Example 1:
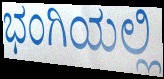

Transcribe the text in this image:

ಭಂಗಿಯಲ್ಲಿ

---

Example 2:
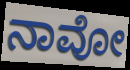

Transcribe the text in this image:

ನಾವೋ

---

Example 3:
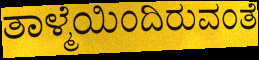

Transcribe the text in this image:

ತಾಳ್ಮೆಯಿಂದಿರುವಂತೆ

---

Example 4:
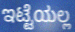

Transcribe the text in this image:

ಇಟ್ಟೆಯಲ್ಲ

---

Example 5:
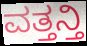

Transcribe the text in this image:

ವತ್ತನ್ತಿ